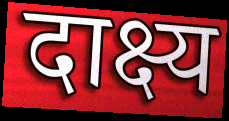
दाक्ष्य